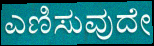
ಎಣಿಸುವುದೇ